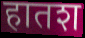
हातश